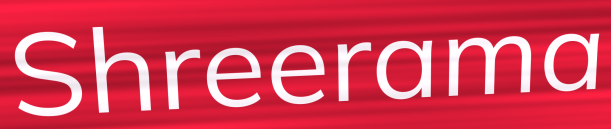
Shreerama